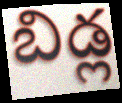
బిడ్ల